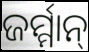
ଜର୍ମ୍ମାନ୍